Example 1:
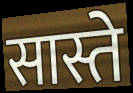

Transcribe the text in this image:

सास्ते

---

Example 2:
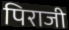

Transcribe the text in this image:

पिराजी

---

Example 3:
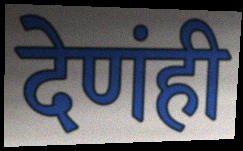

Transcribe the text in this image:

देणंही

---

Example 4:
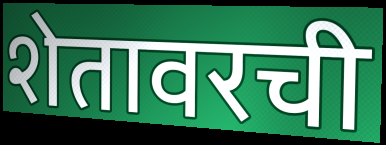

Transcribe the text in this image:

शेतावरची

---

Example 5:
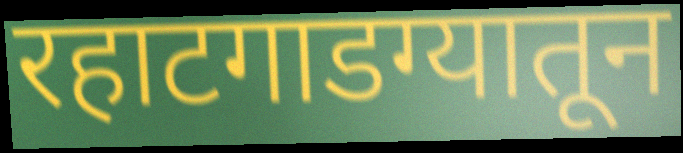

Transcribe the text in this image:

रहाटगाडग्यातून